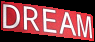
DREAM